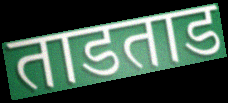
ताडताड